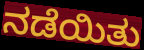
ನಡೆಯಿತು